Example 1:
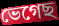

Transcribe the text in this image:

ভেগেছ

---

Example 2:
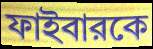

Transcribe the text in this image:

ফাইবারকে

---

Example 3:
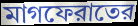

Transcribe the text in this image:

মাগফেরাতের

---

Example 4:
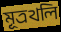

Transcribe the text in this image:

মূত্রথলি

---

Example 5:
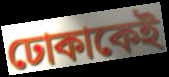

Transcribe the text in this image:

ঢোকাকেই